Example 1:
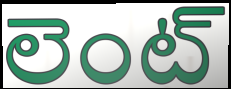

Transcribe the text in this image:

లెంట్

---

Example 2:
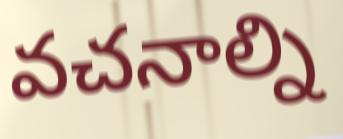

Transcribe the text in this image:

వచనాల్ని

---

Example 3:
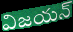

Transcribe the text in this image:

విజయన్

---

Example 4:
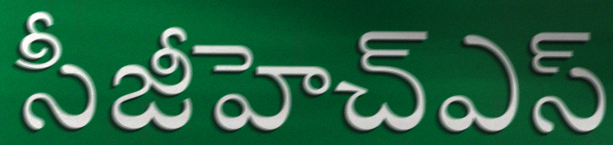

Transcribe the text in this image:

సీజీహెచ్ఎస్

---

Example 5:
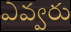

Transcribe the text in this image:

ఎవ్వరు